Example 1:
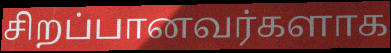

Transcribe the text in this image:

சிறப்பானவர்களாக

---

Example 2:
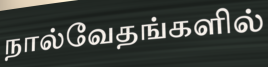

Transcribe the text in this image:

நால்வேதங்களில்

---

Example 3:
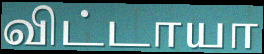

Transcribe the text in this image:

விட்டாயா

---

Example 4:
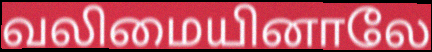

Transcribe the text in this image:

வலிமையினாலே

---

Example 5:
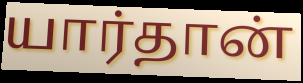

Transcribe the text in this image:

யார்தான்